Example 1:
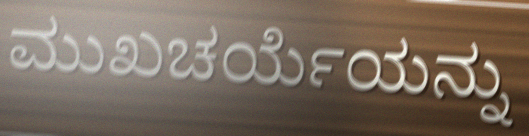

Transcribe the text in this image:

ಮುಖಚರ್ಯೆಯನ್ನು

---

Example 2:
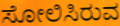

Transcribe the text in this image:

ಸೋಲಿಸಿರುವ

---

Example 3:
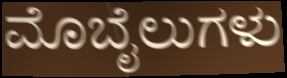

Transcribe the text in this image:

ಮೊಬೈಲುಗಳು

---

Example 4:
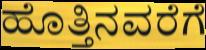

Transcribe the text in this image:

ಹೊತ್ತಿನವರೆಗೆ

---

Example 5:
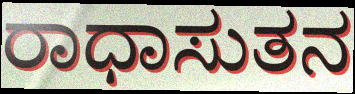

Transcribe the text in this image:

ರಾಧಾಸುತನ